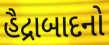
હૈદ્રાબાદનો